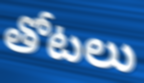
తోటలు